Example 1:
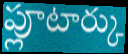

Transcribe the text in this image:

ప్లూటార్కు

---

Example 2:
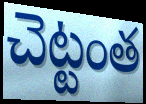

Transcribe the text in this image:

చెట్టంత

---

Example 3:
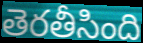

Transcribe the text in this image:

తెరతీసింది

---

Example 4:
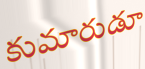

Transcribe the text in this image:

కుమారుడూ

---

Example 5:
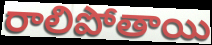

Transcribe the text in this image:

రాలిపోతాయి